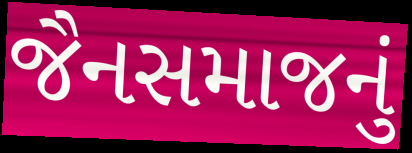
જૈનસમાજનું